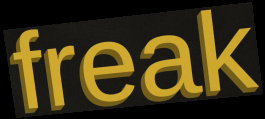
freak